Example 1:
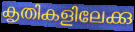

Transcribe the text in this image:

കൃതികളിലേക്കു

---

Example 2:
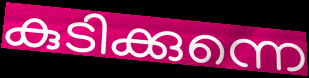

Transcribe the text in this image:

കുടിക്കുന്നെ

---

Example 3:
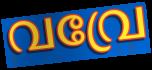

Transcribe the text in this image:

വവ്രേ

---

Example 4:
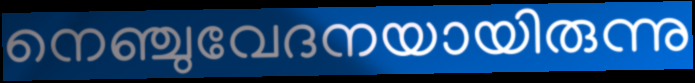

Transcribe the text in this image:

നെഞ്ചുവേദനയായിരുന്നു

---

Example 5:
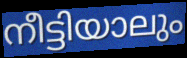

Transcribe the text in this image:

നീട്ടിയാലും